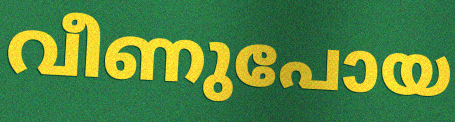
വീണുപോയ